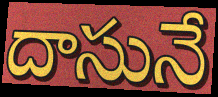
దాసునే